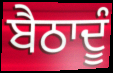
ਬੈਠਾਦੂੰ